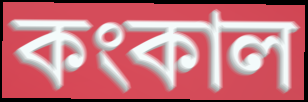
কংকাল